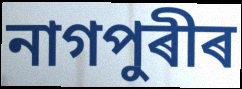
নাগপুৰীৰ